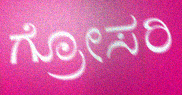
ಗ್ರೋಸರಿ